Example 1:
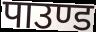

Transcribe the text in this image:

पाउण्‍ड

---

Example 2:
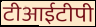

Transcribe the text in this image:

टीआईटीपी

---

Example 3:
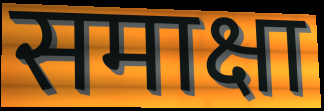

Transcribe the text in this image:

समाक्षा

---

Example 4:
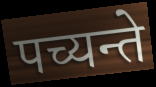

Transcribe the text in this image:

पच्यन्ते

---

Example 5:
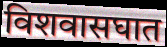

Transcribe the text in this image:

विशवासघात